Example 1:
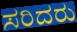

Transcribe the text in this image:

ಸರಿದರು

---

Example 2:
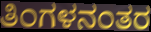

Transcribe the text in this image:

ತಿಂಗಳನಂತರ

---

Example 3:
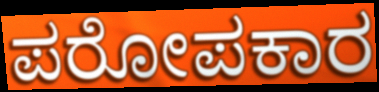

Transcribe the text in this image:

ಪರೋಪಕಾರ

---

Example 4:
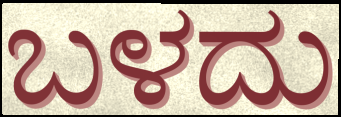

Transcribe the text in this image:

ಬಳದು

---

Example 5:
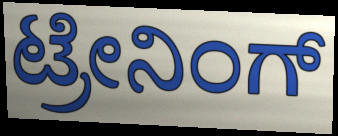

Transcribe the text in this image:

ಟ್ರೇನಿಂಗ್